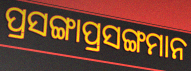
ପ୍ରସଙ୍ଗାପ୍ରସଙ୍ଗମାନ